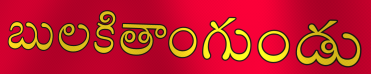
బులకితాంగుండు